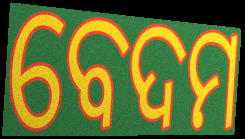
ବେଦମ